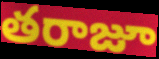
తరాజూ